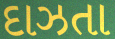
દાઝતા